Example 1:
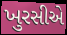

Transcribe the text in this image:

ખુરસીએ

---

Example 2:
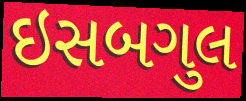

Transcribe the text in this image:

ઇસબગુલ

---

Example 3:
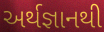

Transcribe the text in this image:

અર્થજ્ઞાનથી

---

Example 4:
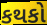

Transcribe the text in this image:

કથકો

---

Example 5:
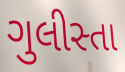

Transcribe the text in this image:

ગુલીસ્તા